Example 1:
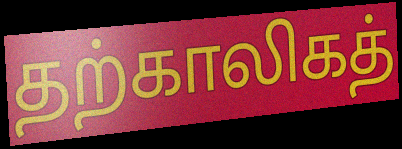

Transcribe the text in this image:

தற்காலிகத்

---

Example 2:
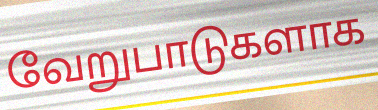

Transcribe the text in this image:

வேறுபாடுகளாக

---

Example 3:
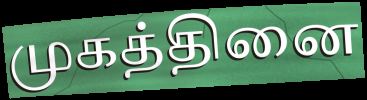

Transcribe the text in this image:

முகத்தினை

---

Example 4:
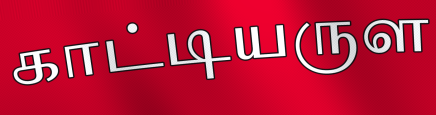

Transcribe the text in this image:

காட்டியருள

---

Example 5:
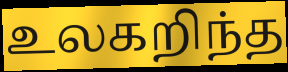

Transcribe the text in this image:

உலகறிந்த